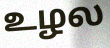
உழல